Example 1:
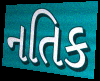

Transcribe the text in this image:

નતિક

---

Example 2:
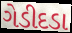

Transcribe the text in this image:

ગેડીદડા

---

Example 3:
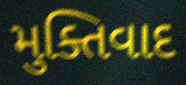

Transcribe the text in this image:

મુક્તિવાદ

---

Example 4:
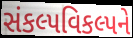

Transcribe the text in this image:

સંકલ્પવિકલ્પને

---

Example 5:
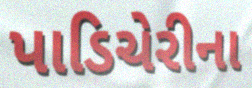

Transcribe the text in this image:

પાડિચેરીના